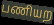
பணியற